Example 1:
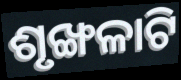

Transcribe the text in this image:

ଶୃଙ୍ଖଳାଟି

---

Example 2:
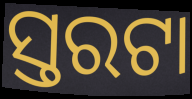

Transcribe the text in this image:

ସ୍ତରଟା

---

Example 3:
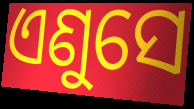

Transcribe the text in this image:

ଏଣୁସେ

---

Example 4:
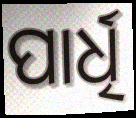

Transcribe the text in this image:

ପାର୍ଧି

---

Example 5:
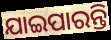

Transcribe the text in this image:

ଯାଇପାରନ୍ତି